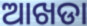
ଆଖଡା